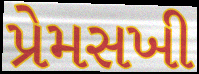
પ્રેમસખી